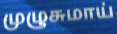
முழுசுமாய்